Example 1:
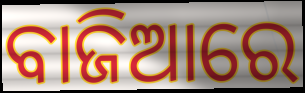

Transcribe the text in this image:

ବାଜିଆରେ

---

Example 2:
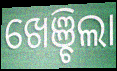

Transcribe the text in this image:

ଖେଞ୍ଚିଲା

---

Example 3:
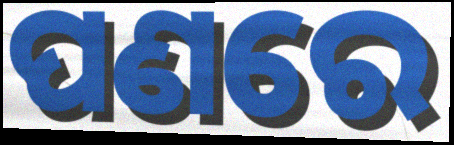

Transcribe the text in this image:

ପଣରେ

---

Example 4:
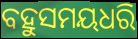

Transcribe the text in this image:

ବହୁସମୟଧରି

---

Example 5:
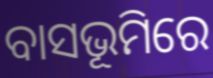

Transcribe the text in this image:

ବାସଭୂମିରେ